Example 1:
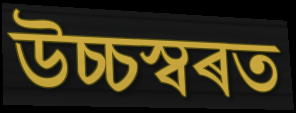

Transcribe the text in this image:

উচ্চস্বৰত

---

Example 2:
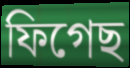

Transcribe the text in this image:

ফিগেছ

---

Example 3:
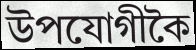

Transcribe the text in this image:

উপযোগীকৈ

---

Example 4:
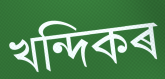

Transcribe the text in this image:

খন্দিকৰ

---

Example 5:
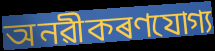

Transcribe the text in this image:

অনৱীকৰণযোগ্য